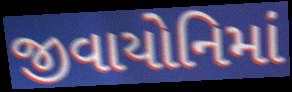
જીવાયોનિમાં